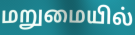
மறுமையில்